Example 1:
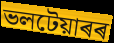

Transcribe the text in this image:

ভলটেয়াৰৰ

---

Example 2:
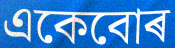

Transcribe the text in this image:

একেবোৰ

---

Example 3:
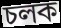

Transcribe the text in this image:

চলক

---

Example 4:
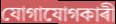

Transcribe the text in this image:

যোগাযোগকাৰী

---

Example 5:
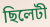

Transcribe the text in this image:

ছিলেটী